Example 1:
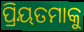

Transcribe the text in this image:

ପ୍ରିୟତମାକୁ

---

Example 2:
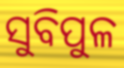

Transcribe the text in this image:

ସୁବିପୁଳ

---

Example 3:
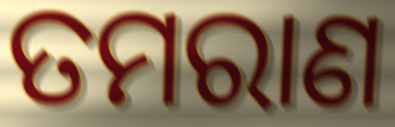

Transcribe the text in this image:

ତମରାଣ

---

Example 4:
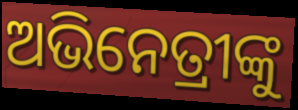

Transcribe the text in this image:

ଅଭିନେତ୍ରୀଙ୍କୁ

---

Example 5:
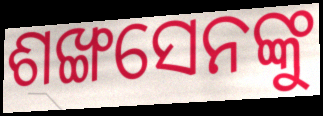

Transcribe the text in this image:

ଶଙ୍ଖସେନଙ୍କୁ